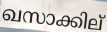
ഖസാക്കില്